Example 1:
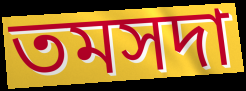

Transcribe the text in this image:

তমসদা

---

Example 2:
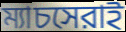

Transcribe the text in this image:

ম্যাচসেরাই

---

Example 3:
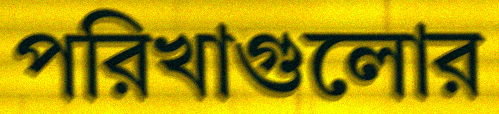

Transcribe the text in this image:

পরিখাগুলোর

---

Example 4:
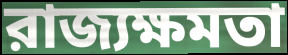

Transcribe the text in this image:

রাজ্যক্ষমতা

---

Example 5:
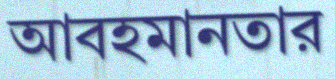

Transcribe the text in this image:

আবহমানতার